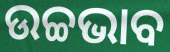
ଉଚ୍ଚଭାବ